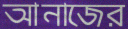
আনাজের